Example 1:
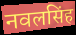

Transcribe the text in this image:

नवलसिंह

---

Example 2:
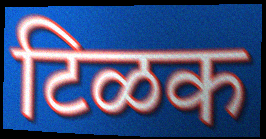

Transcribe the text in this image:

टिळक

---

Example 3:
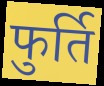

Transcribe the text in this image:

फुर्ति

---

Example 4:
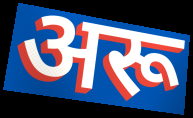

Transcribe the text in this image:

अरू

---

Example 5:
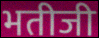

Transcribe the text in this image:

भतीजी